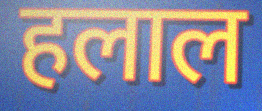
हलाल